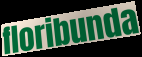
floribunda